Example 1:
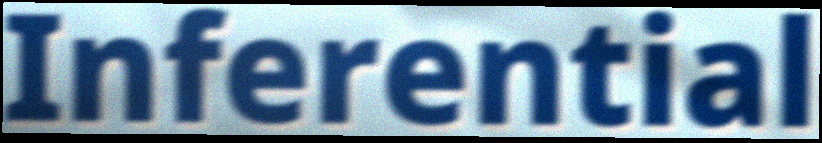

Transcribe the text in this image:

Inferential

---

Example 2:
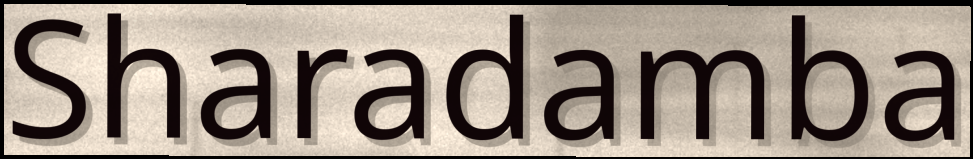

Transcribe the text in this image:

Sharadamba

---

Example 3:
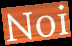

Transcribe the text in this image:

Noi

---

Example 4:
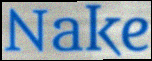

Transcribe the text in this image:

Nake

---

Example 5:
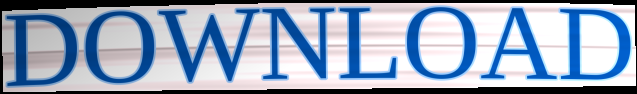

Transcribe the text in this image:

DOWNLOAD